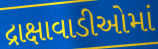
દ્રાક્ષાવાડીઓમાં